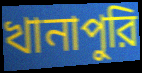
খানাপুরি